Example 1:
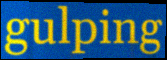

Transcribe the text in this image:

gulping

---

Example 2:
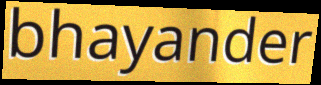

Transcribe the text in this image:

bhayander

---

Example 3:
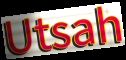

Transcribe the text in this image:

Utsah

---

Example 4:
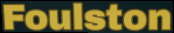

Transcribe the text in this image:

Foulston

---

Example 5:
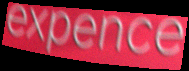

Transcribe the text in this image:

expence